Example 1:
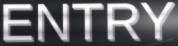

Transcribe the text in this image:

ENTRY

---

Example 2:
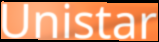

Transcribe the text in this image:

Unistar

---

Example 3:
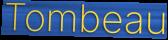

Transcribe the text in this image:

Tombeau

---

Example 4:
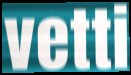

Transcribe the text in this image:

vetti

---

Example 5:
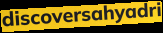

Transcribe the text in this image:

discoversahyadri